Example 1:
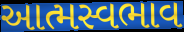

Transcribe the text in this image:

આત્મસ્વભાવ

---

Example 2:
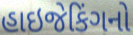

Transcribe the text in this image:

હાઇજેકિંગનો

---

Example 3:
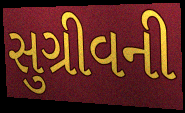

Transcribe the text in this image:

સુગ્રીવની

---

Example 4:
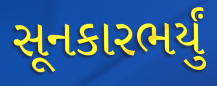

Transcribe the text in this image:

સૂનકારભર્યું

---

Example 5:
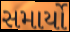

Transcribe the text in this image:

સમાર્યો